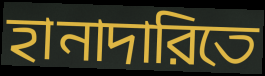
হানাদারিতে